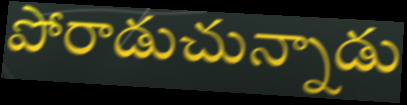
పోరాడుచున్నాడు